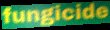
fungicide